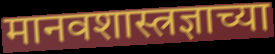
मानवशास्त्रज्ञाच्या